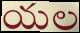
యల